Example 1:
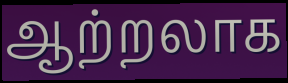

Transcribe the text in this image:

ஆற்றலாக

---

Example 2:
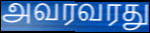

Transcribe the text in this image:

அவரவரது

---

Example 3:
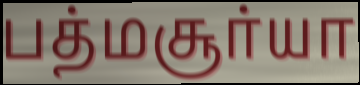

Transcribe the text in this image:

பத்மசூர்யா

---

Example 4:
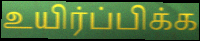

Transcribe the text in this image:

உயிர்ப்பிக்க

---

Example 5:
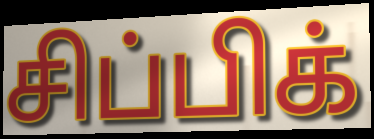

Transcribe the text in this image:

சிப்பிக்